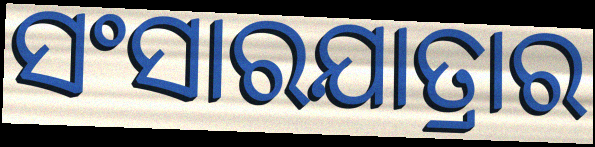
ସଂସାରଯାତ୍ରାର